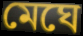
মেঘে